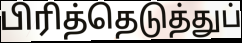
பிரித்தெடுத்துப்